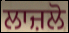
ਲਾਜ਼ਲੋ